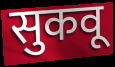
सुकवू